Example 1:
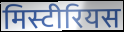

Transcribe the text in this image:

मिस्टीरियस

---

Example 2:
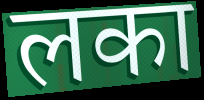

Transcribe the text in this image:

लका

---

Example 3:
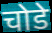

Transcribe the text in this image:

चोडे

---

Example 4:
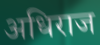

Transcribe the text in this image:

अधिराज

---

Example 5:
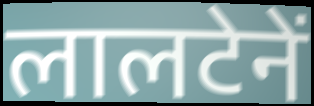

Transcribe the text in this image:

लालटेनें